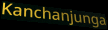
Kanchanjunga